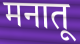
मनातू